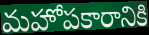
మహోపకారానికి